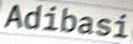
Adibasi